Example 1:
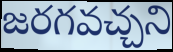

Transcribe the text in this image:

జరగవచ్చని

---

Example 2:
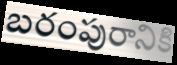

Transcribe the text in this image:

బరంపురానికి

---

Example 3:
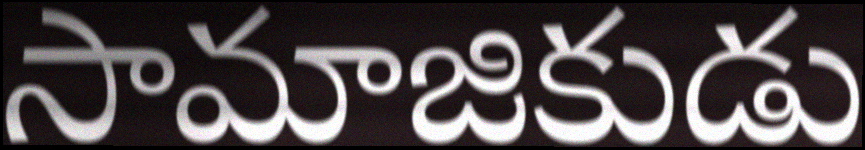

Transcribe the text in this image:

సామాజికుడు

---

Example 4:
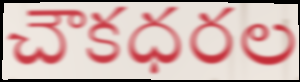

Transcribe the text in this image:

చౌకధరల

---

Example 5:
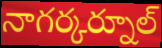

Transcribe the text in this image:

నాగర్కర్నూల్